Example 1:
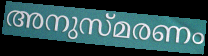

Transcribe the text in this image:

അനുസ്മരണം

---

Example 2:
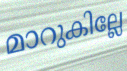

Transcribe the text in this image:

മാറുകില്ലേ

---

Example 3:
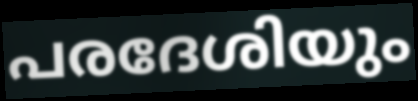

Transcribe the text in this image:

പരദേശിയും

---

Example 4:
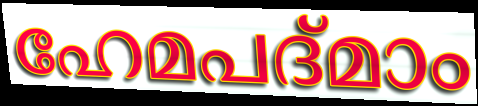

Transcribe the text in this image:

ഹേമപദ്മാം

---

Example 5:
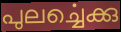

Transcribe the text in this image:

പുലൎച്ചെക്കു